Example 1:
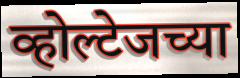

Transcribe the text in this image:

व्होल्टेजच्या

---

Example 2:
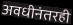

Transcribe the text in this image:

अवधीनंतरही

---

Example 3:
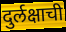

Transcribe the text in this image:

दुर्लक्षाची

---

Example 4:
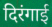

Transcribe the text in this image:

दिरंगाई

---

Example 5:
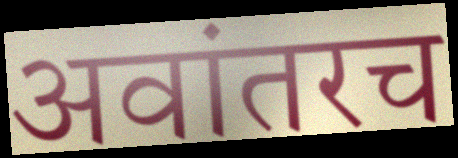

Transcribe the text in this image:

अवांतरच